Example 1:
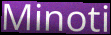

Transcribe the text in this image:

Minoti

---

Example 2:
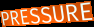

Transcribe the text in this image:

PRESSURE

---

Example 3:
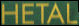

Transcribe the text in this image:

HETAL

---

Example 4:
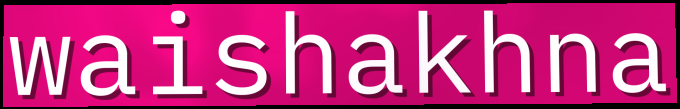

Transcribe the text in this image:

waishakhna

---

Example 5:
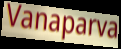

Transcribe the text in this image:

Vanaparva